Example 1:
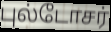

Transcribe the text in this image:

புல்டோசர்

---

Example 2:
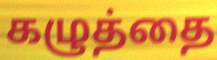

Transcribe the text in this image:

கழுத்தை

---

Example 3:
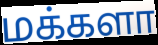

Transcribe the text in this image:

மக்களா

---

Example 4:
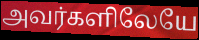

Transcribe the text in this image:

அவர்களிலேயே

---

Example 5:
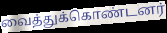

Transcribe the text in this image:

வைத்துக்கொண்டனர்